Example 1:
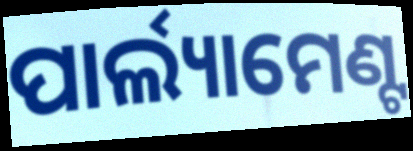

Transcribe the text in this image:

ପାର୍ଲ୍ୟାମେଣ୍ଟ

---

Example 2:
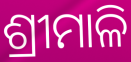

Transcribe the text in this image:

ଶ୍ରୀମାଳି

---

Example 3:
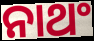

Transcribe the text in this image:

ନାଥଂ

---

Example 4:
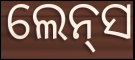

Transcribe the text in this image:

ଲେନ୍‌ସ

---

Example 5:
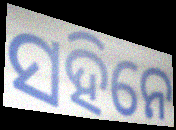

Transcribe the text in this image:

ସହିନେ